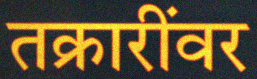
तक्रारींवर